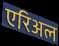
एरिअल